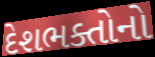
દેશભક્તોનો